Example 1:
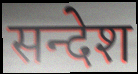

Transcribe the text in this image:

सन्देश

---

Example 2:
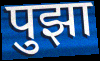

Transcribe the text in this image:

पुझा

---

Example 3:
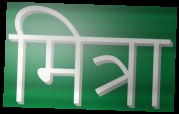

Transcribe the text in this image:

मित्रा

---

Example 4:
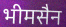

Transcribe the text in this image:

भीमसैन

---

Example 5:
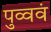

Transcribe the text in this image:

पुव्ववं